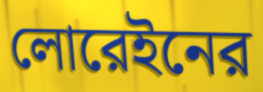
লোরেইনের